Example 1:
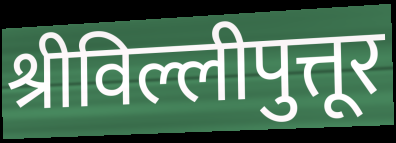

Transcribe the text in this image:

श्रीविल्लीपुत्तूर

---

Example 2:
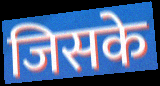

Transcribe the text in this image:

जिसके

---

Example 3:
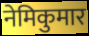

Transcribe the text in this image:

नेमिकुमार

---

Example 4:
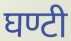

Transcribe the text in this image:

घण्टी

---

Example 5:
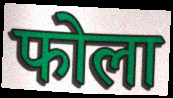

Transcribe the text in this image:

फोला